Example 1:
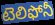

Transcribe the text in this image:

టెలిఫోనీ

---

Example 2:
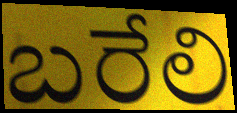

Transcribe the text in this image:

బరేలి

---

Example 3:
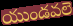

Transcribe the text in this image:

యుండవలె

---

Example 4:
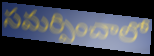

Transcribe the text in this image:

సమర్పించాలో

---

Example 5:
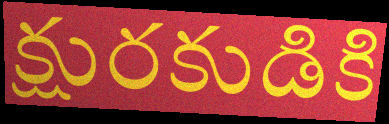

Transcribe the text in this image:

క్షురకుడికి